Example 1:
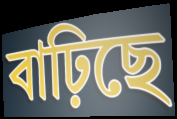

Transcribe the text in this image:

বাঢ়িছে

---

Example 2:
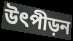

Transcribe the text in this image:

উৎপীড়ন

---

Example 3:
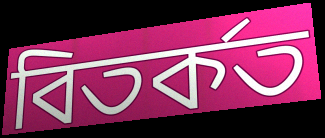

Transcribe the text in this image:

বিতৰ্কত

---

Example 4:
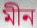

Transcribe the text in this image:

মীন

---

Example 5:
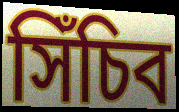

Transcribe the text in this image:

সিঁচিব